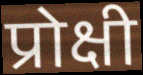
प्रोक्षी